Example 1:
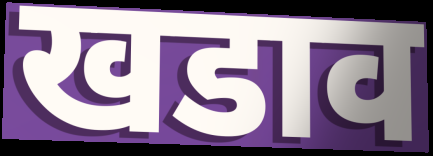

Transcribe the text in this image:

खडाव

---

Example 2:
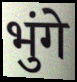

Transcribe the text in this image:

भुंगे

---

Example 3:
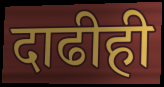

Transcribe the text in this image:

दाढीही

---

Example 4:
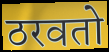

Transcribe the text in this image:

ठरवतो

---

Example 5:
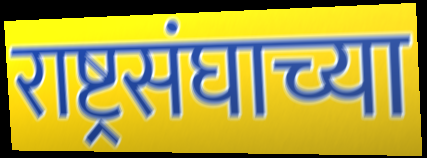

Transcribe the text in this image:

राष्ट्रसंघाच्या